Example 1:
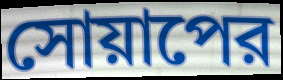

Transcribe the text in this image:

সোয়াপের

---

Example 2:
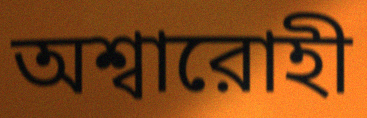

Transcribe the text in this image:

অশ্বারোহী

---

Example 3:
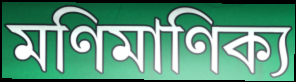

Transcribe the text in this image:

মণিমাণিক্য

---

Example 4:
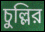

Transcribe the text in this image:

চুল্লির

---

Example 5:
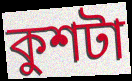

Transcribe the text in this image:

কুশটা